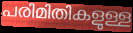
പരിമിതികളുള്ള